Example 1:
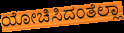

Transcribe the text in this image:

ಯೋಚಿಸಿದಂತೆಲ್ಲಾ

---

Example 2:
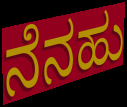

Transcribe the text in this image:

ನೆನಹು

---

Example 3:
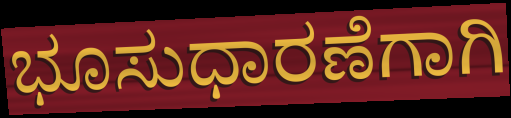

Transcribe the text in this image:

ಭೂಸುಧಾರಣೆಗಾಗಿ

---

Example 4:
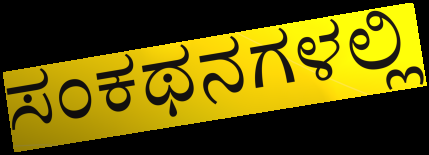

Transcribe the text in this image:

ಸಂಕಥನಗಳಲ್ಲಿ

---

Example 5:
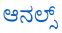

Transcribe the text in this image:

ಆನಲ್ಸ್